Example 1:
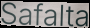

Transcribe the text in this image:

Safalta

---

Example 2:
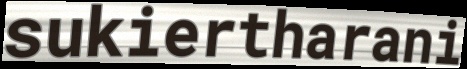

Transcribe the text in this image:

sukiertharani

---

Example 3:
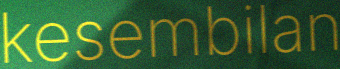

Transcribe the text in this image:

kesembilan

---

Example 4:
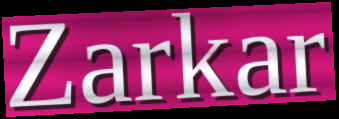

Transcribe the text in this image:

Zarkar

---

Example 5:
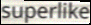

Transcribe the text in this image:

superlike